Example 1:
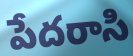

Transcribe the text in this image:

పేదరాసి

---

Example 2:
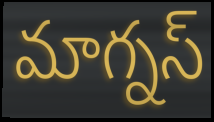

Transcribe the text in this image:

మాగ్నస్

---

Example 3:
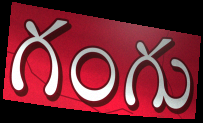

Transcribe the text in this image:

గంగు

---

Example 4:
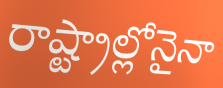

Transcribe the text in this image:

రాష్ట్రాల్లోనైనా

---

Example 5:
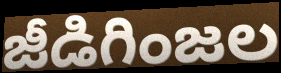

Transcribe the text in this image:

జీడిగింజల